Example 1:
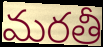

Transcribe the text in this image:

మరతీ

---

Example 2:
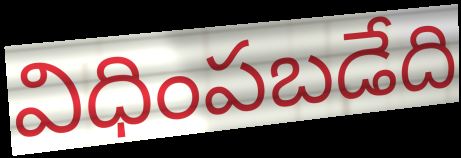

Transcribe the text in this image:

విధింపబడేది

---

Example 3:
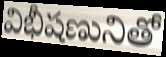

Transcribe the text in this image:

విభీషణునితో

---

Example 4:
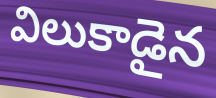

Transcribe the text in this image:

విలుకాడైన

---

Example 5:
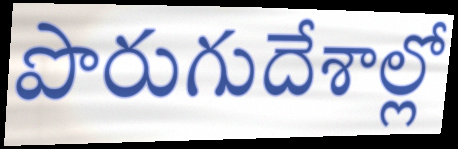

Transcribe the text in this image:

పొరుగుదేశాల్లో